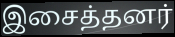
இசைத்தனர்